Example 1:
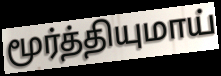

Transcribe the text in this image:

மூர்த்தியுமாய்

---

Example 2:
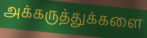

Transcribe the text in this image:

அக்கருத்துக்களை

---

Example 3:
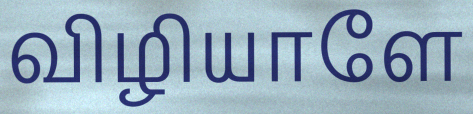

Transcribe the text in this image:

விழியாளே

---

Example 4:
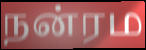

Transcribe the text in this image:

நன்ரம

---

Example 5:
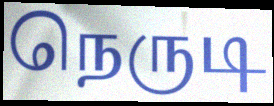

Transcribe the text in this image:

நெருடி